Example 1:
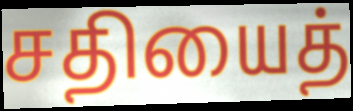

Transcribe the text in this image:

சதியைத்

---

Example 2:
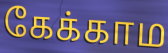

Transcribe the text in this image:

கேக்காம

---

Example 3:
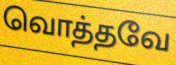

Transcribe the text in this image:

வொத்தவே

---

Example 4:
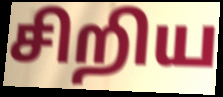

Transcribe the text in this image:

சிறிய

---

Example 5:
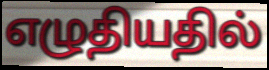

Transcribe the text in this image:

எழுதியதில்